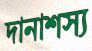
দানাশস্য